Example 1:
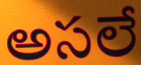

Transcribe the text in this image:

అసలే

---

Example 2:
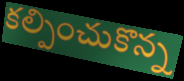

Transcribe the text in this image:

కల్పించుకొన్న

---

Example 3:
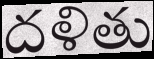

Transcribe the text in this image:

దళితు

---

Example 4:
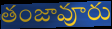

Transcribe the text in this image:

తంజావూరు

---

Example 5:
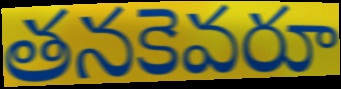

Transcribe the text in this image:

తనకెవరూ